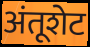
अंतूशेट